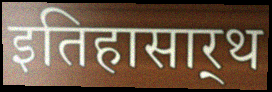
इतिहासार्थ